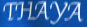
THAYA